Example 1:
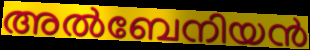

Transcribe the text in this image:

അൽബേനിയൻ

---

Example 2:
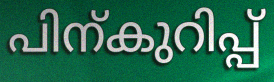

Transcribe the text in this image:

പിന്കുറിപ്പ്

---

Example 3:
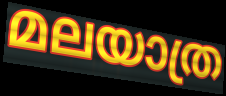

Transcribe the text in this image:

മലയാത്ര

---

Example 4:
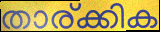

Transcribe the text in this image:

താര്ക്കിക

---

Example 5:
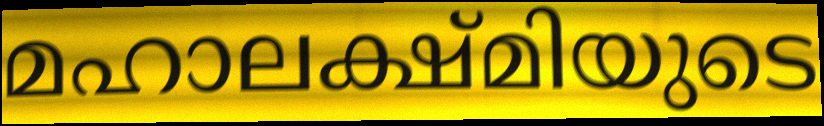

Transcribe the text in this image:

മഹാലക്ഷ്മിയുടെ